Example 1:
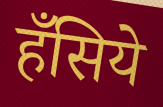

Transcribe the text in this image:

हँसिये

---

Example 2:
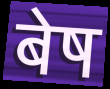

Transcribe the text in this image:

बेष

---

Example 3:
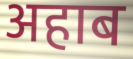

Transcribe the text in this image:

अहाब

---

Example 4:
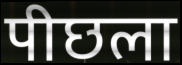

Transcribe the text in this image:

पीछला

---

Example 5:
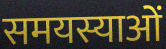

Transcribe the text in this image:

समयस्याओं